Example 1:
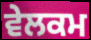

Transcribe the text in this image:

ਵੇਲਕਮ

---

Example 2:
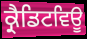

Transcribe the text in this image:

ਕ੍ਰੈਡਿਟਵਿਊ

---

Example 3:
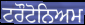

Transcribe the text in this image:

ਟਰੌਟੋਨਿਅਮ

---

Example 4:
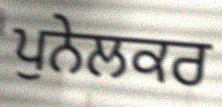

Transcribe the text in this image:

ਪੁਨੇਲਕਰ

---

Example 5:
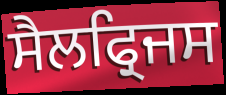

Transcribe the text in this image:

ਸੈਲਫ੍ਰਿਜਸ